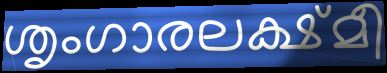
ശൃംഗാരലക്ഷ്മീ